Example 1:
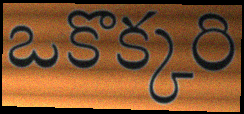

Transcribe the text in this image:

ఒకొక్కరి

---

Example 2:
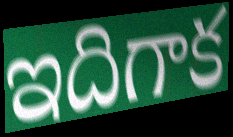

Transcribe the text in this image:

ఇదిగాక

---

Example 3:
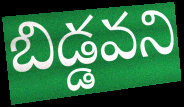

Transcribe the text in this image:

బిడ్డవని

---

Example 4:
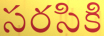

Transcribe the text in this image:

సరసికి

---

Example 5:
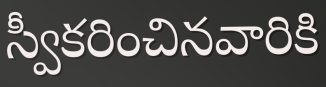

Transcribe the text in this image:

స్వీకరించినవారికి